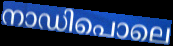
നാഡിപൊലെ